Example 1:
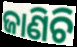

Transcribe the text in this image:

ଜାଣିଚି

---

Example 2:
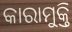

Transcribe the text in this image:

କାରାମୁକ୍ତି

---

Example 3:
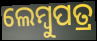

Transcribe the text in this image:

ଲେମ୍ବୁପତ୍ର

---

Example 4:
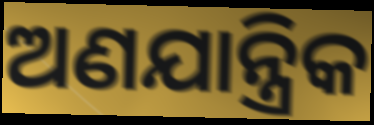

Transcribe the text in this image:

ଅଣଯାନ୍ତ୍ରିକ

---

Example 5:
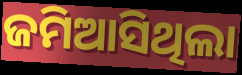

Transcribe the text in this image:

ଜମିଆସିଥିଲା